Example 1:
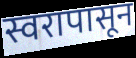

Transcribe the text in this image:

स्वरापासून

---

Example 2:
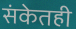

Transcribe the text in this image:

संकेतही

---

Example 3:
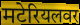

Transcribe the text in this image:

मटेरियलवर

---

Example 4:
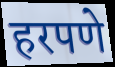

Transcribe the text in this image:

हरपणे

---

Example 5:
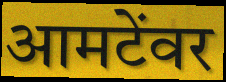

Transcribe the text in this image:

आमटेंवर